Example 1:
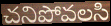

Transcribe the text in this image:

చనిపోవలసి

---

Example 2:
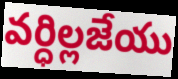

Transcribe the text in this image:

వర్ధిల్లజేయు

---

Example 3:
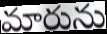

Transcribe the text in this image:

మారును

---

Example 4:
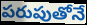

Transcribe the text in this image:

పరుపుతోనే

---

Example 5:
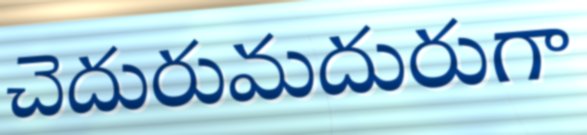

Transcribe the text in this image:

చెదురుమదురుగా